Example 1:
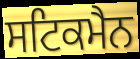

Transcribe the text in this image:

ਸਟਿਕਮੈਨ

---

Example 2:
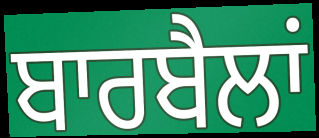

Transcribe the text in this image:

ਬਾਰਬੈਲਾਂ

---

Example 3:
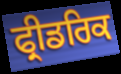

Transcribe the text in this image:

ਫ੍ਰੀਡਰਿਕ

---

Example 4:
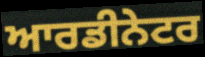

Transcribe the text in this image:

ਆਰਡੀਨੇਟਰ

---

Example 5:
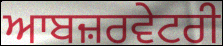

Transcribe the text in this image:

ਆਬਜ਼ਰਵੇਟਰੀ